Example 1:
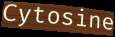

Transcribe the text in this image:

Cytosine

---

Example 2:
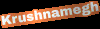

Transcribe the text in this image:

Krushnamegh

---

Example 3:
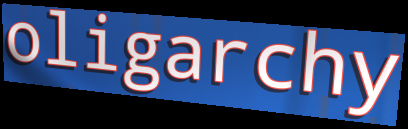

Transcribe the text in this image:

oligarchy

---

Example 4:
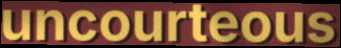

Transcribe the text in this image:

uncourteous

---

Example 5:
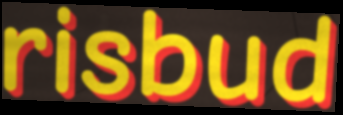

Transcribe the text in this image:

risbud